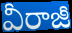
వీరాజీ